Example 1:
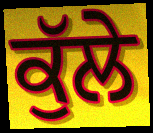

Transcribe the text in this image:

ਕੁੱਲੇ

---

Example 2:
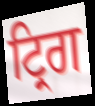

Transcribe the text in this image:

ਟ੍ਰਿਗ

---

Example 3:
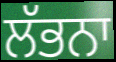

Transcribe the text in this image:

ਲੱਭਨਾ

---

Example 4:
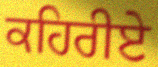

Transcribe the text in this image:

ਕਹਿਰੀਏ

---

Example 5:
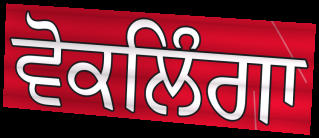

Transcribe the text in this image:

ਵੋਕਲਿੰਗਾ